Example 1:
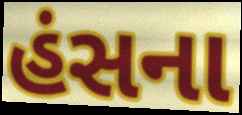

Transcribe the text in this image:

હંસના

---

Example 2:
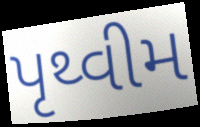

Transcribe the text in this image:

પૃથ્વીમ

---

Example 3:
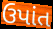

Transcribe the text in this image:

ઉપાંત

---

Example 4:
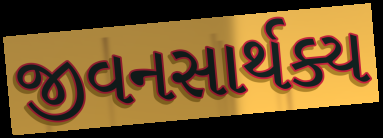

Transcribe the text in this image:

જીવનસાર્થક્ય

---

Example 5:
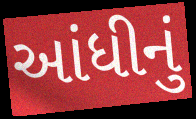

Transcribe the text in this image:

આંધીનું